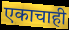
एकाचाही